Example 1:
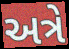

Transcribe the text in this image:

અત્રે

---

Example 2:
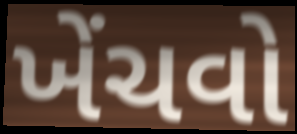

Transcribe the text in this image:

ખેંચવો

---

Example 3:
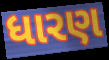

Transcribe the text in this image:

ધારણ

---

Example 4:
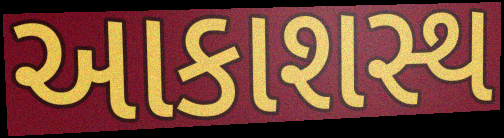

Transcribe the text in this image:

આકાશસ્થ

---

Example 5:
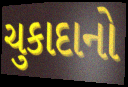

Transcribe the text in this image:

ચુકાદાનો